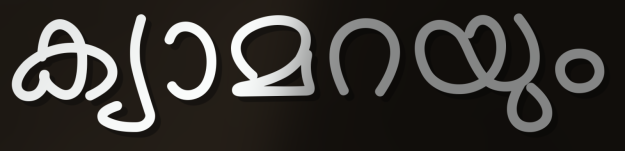
ക്യാമറയും